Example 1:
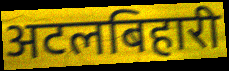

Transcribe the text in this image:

अटलबिहारी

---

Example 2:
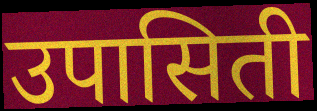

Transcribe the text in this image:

उपासिती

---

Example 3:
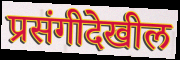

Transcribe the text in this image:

प्रसंगीदेखील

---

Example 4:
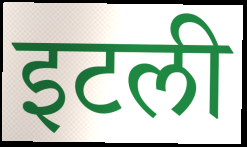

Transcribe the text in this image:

इटली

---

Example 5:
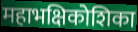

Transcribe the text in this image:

महाभक्षिकोशिका